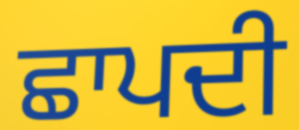
ਛਾਪਦੀ